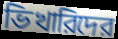
ভিখারিদের